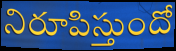
నిరూపిస్తుందో